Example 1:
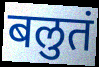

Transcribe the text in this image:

बलुतं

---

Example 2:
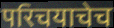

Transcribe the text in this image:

परिचयाचेच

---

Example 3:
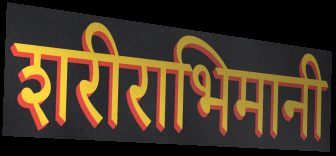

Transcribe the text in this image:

शरीराभिमानी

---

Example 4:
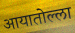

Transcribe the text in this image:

आयातोल्ला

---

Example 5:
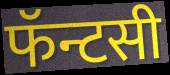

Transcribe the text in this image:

फॅन्टसी